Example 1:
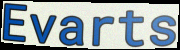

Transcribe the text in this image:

Evarts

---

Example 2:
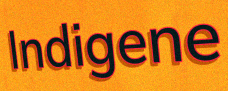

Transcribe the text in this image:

Indigene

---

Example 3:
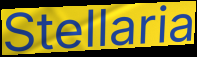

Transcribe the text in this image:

Stellaria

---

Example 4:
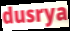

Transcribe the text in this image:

dusrya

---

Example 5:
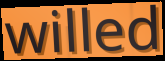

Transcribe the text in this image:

willed